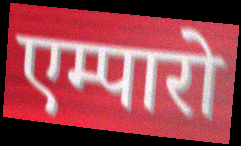
एम्पारो